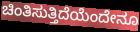
ಚಿಂತಿಸುತ್ತಿದೆಯೆಂದೇನೂ